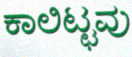
ಕಾಲಿಟ್ಟವು